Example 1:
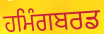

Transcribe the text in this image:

ਹਮਿੰਗਬਰਡ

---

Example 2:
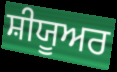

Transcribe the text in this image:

ਸ਼ੀਯੂਅਰ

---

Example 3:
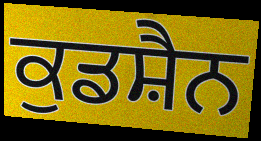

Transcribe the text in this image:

ਕੁਡਸ਼ੈਨ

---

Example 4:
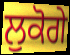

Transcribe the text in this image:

ਲੁਕੋਗੇ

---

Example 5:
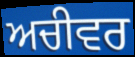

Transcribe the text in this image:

ਅਚੀਵਰ